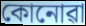
কোনোৱা